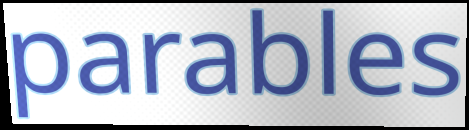
parables